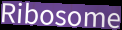
Ribosome